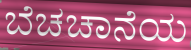
ಬೆಚಚಾನೆಯ